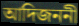
আদিজননী